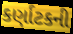
કર્ણાટકની